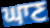
ਘਾਣ